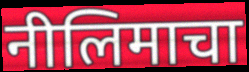
नीलिमाचा